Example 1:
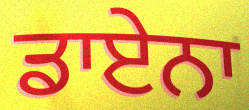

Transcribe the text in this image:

ਡਾਏਨਾ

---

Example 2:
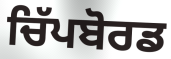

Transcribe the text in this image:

ਚਿੱਪਬੋਰਡ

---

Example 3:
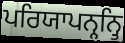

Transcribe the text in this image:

ਪਰਿਯਾਪਨ੍ਨਨ੍ਤਿ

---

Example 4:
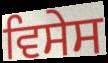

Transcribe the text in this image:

ਵਿਸੇਸ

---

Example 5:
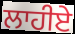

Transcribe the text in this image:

ਲਾਹੀਏ